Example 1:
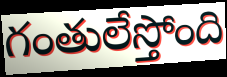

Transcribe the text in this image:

గంతులేస్తోంది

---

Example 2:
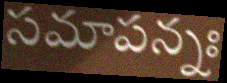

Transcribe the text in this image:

సమాపన్నః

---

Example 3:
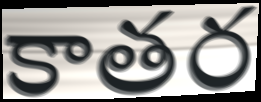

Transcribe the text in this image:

కాతర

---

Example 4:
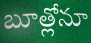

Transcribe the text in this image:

బూత్లోనూ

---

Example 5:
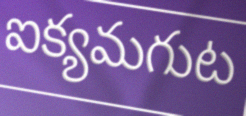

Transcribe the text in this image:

ఐక్యమగుట